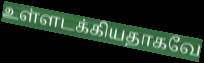
உள்ளடக்கியதாகவே